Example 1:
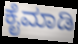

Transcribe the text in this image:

ಕೈಮಾಡಿ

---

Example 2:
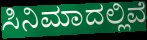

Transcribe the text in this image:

ಸಿನಿಮಾದಲ್ಲಿವೆ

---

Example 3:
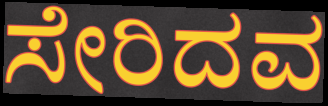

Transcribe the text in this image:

ಸೇರಿದವ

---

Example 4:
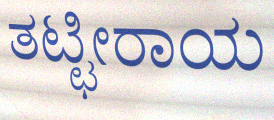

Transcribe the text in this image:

ತಟ್ಟೀರಾಯ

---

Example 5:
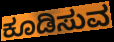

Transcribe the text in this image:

ಕೂಡಿಸುವ